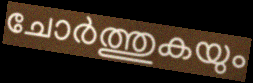
ചോർത്തുകയും